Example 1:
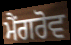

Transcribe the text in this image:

ਮੈਂਗਰੋਵ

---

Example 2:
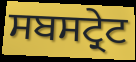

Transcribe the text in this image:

ਸਬਸਟ੍ਰੇਟ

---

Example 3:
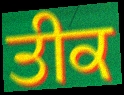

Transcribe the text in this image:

ਤੀਕ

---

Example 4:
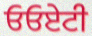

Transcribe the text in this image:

ਓਓਏਟੀ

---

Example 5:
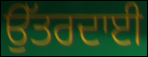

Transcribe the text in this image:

ਉੱਤਰਦਾਈ